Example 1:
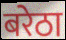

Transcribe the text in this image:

बरेठा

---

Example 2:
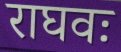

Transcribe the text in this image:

राघवः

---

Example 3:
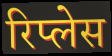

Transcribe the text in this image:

रिप्लेस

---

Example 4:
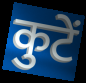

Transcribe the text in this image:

कुटें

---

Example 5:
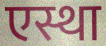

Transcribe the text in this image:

एस्था